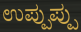
ಉಪ್ಪುಪ್ಪು